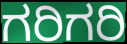
ಗರಿಗರಿ